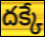
దక్కే